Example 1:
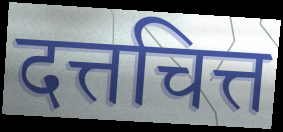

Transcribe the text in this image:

दत्तचित्त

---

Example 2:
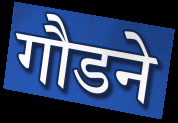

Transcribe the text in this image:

गौडने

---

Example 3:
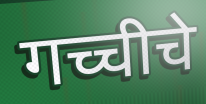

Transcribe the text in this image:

गच्चीचे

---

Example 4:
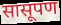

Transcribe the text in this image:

सासूपण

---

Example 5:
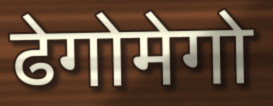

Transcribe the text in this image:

ढेगोमेगो